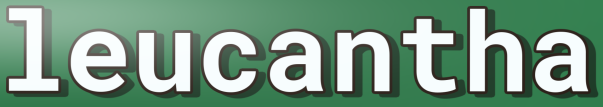
leucantha